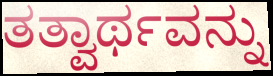
ತತ್ವಾರ್ಥವನ್ನು